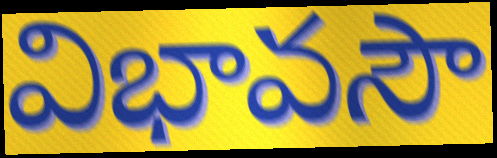
విభావసౌ